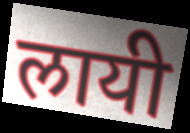
लायी